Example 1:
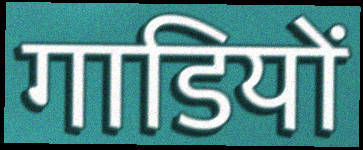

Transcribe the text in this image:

गाडियों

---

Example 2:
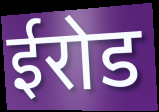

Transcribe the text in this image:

ईरोड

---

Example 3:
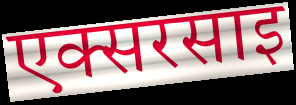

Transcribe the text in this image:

एक्सरसाइ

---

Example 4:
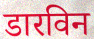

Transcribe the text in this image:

डारविन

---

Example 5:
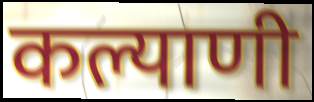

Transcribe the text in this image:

कल्याणी